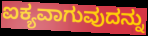
ಐಕ್ಯವಾಗುವುದನ್ನು